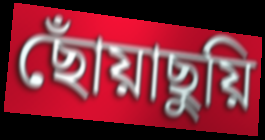
ছোঁয়াছুয়ি